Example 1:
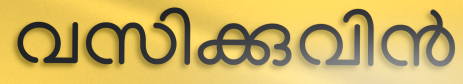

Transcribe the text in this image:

വസിക്കുവിൻ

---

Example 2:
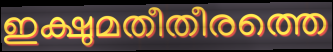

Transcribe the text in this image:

ഇക്ഷുമതീതീരത്തെ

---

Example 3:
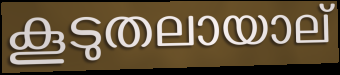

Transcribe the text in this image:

കൂടുതലായാല്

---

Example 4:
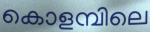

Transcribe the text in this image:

കൊളമ്പിലെ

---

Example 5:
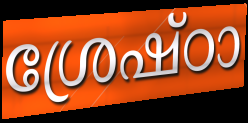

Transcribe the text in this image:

ശ്രേഷ്ഠാ